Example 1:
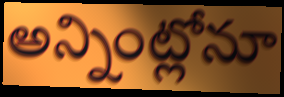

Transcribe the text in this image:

అన్నింట్లోనూ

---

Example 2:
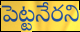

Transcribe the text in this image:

పెట్టనేరని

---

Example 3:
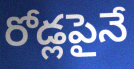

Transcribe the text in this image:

రోడ్లపైనే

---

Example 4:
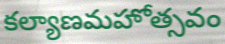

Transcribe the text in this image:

కల్యాణమహోత్సవం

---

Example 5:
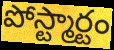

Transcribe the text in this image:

పోస్ట్మార్టం